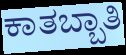
ಕಾತಬ್ಬಾತಿ